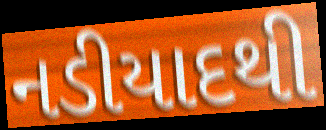
નડીયાદથી